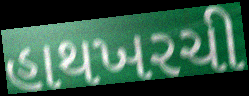
હાથખરચી